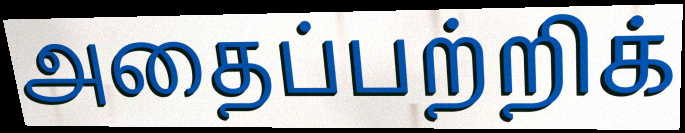
அதைப்பற்றிக்